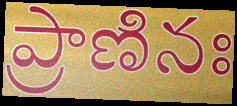
ప్రాణినః